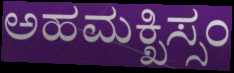
ಅಹಮಕ್ಖಿಸ್ಸಂ